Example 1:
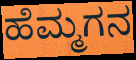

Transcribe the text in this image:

ಹೆಮ್ಮಗನ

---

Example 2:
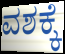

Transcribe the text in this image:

ವಶಕ್ಕೆ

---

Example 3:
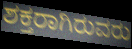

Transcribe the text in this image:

ಶಕ್ತರಾಗಿರುವರು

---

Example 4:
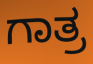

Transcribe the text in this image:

ಗಾತ್ರ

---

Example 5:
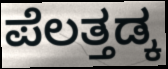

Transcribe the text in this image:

ಪೆಲತ್ತಡ್ಕ